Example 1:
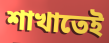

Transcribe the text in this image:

শাখাতেই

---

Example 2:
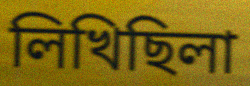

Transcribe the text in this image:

লিখিছিলা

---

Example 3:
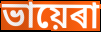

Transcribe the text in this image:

ভায়েৰা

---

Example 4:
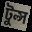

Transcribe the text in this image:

টুল্স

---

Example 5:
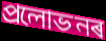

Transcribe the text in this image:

প্ৰলোভনৰ